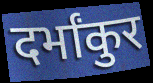
दर्भांकुर